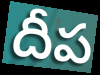
దీప